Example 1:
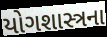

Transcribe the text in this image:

યોગશાસ્ત્રના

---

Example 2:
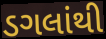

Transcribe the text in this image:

ડગલાંથી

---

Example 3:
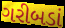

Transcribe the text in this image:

ગરીબડાં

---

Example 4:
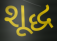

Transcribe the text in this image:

શૂદ્ધ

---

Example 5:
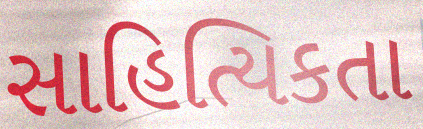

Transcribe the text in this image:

સાહિત્યિકતા